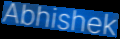
Abhishek